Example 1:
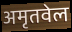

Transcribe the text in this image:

अमृतवेल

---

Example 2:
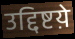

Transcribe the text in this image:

उद्दिष्टय़े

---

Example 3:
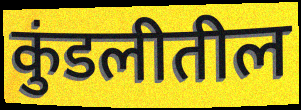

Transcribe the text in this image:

कुंडलीतील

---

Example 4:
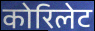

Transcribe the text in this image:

कोरिलेट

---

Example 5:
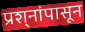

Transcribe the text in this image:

प्रश्नांपासून